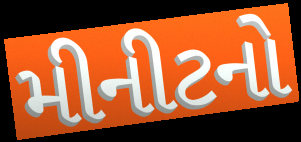
મીનીટનો